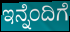
ಇನ್ನೆಂದಿಗೆ